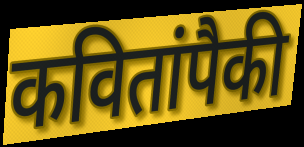
कवितांपैकी